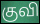
குவி